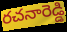
రచనారెడ్డి